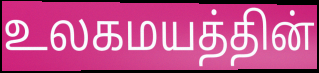
உலகமயத்தின்